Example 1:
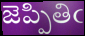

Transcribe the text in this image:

జెప్పితిఁ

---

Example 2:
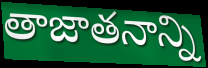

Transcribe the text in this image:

తాజాతనాన్ని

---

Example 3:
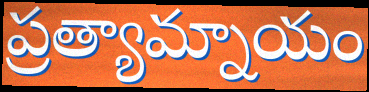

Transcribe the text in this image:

ప్రత్యామ్నాయం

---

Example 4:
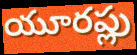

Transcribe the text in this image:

యూరప్లు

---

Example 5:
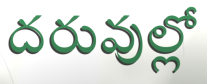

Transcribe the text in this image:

దరువుల్లో